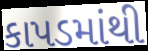
કાપડમાંથી